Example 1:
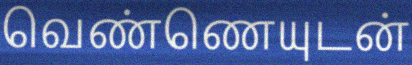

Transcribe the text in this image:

வெண்ணெயுடன்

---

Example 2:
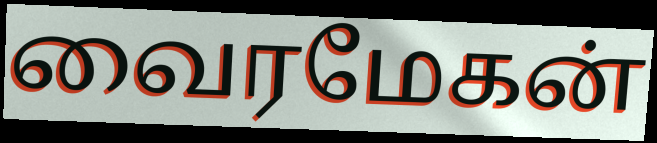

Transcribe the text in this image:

வைரமேகன்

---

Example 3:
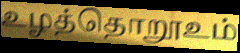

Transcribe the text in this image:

உழத்தொறூஉம்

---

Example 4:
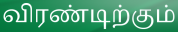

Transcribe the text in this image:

விரண்டிற்கும்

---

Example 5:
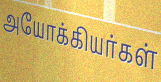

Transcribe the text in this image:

அயோக்கியர்கள்